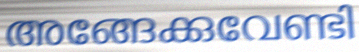
അങ്ങേക്കുവേണ്ടി